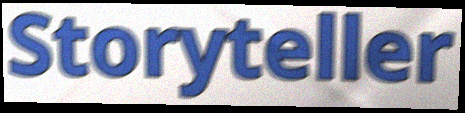
Storyteller